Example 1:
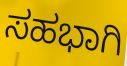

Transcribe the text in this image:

ಸಹಭಾಗಿ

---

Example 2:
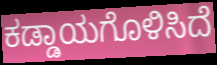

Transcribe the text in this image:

ಕಡ್ಡಾಯಗೊಳಿಸಿದೆ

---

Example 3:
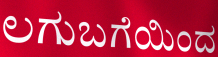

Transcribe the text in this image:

ಲಗುಬಗೆಯಿಂದ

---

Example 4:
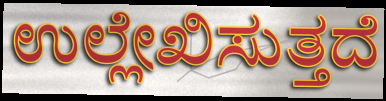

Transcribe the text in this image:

ಉಲ್ಲೇಖಿಸುತ್ತದೆ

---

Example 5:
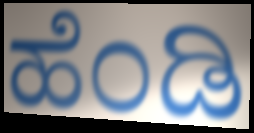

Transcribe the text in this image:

ಹೆಂಡಿ